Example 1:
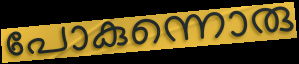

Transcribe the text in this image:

പോകുന്നൊരു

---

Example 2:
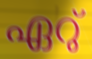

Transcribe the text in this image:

ഏറു്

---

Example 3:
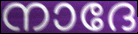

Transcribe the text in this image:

നാദേ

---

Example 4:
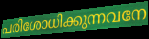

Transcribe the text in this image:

പരിശോധിക്കുന്നവനേ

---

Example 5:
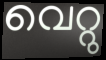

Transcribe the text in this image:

വെറ്റു